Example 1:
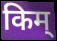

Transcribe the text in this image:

किम्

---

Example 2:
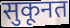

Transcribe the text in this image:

सुकूनत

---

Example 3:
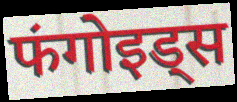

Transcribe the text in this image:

फंगोइड्स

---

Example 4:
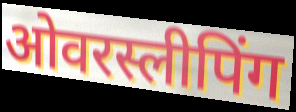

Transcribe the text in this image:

ओवरस्लीपिंग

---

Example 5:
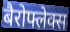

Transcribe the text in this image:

बैरोफ्लेक्स